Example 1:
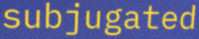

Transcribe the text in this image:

subjugated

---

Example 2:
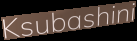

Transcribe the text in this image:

Ksubashini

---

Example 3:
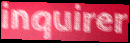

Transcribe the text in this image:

inquirer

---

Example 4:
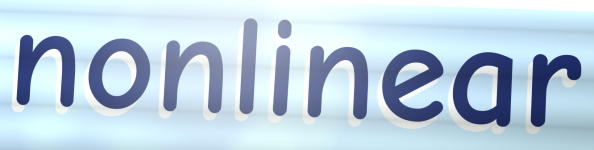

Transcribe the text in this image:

nonlinear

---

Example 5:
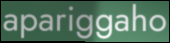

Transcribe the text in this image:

apariggaho